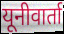
यूनीवार्ता